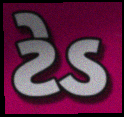
ટેડ